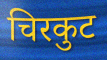
चिरकुट